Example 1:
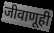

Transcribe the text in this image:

जीवाणूही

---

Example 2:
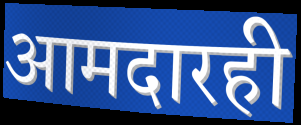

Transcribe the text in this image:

आमदारही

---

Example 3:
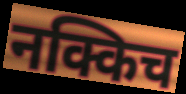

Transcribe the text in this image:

नक्किच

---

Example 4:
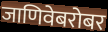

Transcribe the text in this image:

जाणिवेबरोबर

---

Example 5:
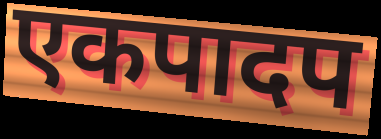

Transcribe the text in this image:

एकपादप